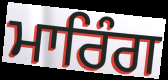
ਮਾਰਿੰਗ